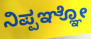
ನಿಪ್ಪಞ್ಞೋ